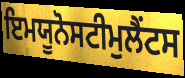
ਇਮਯੂਨੋਸਟੀਮੁਲੈਂਟਸ